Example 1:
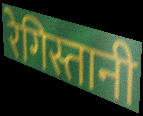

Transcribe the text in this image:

रेगिस्तानी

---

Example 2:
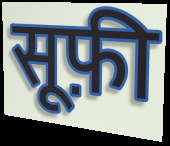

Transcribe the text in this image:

सूफ़ी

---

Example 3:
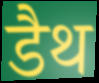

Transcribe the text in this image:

डैथ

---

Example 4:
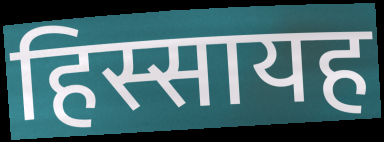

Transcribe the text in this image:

हिस्सायह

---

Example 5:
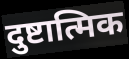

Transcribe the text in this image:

दुष्टात्मिक